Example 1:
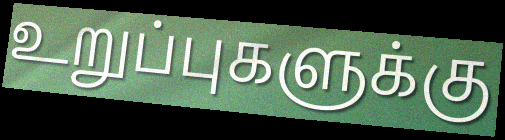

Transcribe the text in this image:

உறுப்புகளுக்கு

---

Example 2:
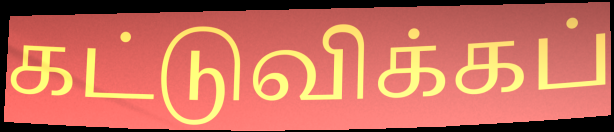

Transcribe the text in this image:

கட்டுவிக்கப்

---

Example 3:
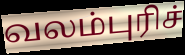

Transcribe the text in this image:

வலம்புரிச்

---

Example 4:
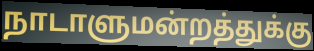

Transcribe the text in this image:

நாடாளுமன்றத்துக்கு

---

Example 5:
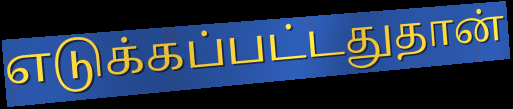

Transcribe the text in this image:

எடுக்கப்பட்டதுதான்